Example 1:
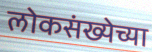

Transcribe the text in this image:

लोकसंख्येच्या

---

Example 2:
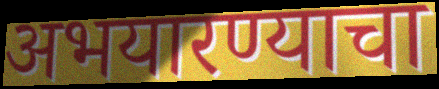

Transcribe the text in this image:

अभयारण्याचा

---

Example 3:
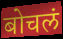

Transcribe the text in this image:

बोचलं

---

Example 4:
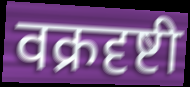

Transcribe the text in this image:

वक्रदृष्टी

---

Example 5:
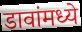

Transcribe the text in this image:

डावांमध्ये